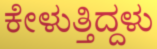
ಕೇಳುತ್ತಿದ್ದಳು